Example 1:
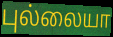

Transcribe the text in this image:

புல்லையா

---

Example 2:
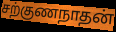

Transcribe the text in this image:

சற்குணநாதன்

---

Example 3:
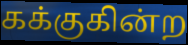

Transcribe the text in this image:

கக்குகின்ற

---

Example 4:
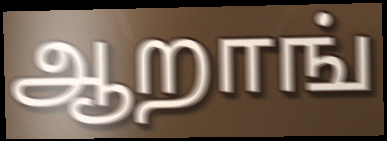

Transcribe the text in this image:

ஆறாங்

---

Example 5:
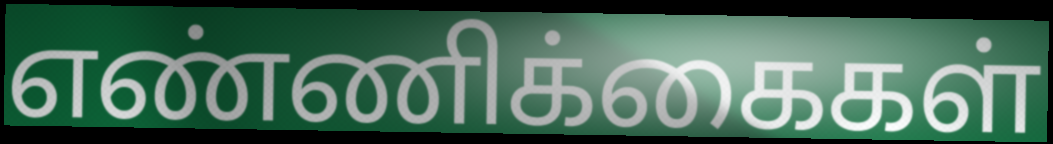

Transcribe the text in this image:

எண்ணிக்கைகள்